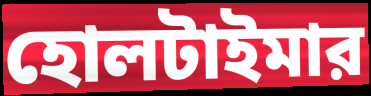
হোলটাইমার